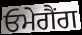
ਓਮੇਗੈਂਗ